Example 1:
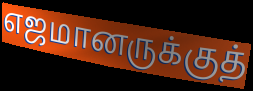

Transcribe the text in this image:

எஜமானருக்குத்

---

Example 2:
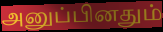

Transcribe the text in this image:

அனுப்பினதும்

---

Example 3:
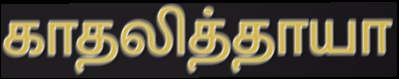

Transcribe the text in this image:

காதலித்தாயா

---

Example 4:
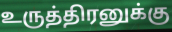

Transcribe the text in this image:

உருத்திரனுக்கு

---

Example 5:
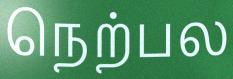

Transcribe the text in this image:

நெற்பல